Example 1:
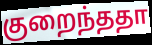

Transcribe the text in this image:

குறைந்ததா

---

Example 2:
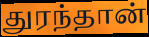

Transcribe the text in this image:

துரந்தான்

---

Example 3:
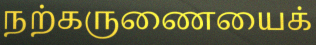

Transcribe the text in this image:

நற்கருணையைக்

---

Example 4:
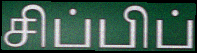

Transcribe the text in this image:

சிப்பிப்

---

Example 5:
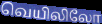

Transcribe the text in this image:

வெயிலிலோ